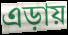
এড়ায়